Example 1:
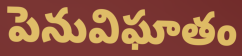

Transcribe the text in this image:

పెనువిఘాతం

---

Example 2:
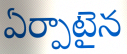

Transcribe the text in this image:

ఏర్పాటైన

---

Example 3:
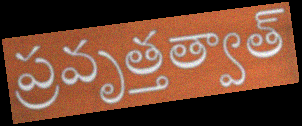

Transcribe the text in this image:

ప్రవృత్తత్వాత్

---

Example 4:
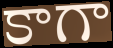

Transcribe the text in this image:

కాగా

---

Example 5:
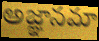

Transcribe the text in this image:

అజ్ఞానమా